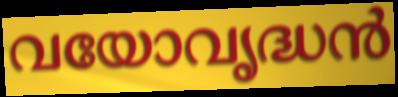
വയോവൃദ്ധൻ